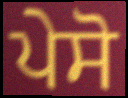
ਪੇਸੋ